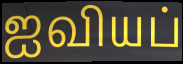
ஐவியப்